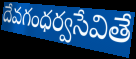
దేవగంధర్వసేవితే